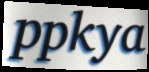
ppkya